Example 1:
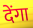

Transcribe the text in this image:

देंगा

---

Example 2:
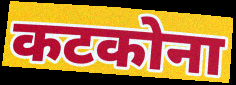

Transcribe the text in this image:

कटकोना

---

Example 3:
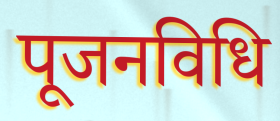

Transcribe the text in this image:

पूजनविधि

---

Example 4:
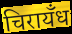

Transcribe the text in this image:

चिरायँध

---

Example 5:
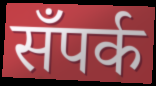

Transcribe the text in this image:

सँपर्क